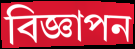
বিজ্ঞাপন